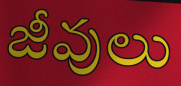
జీవులు